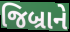
જિબ્રાને